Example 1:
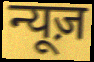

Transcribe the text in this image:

न्यूज़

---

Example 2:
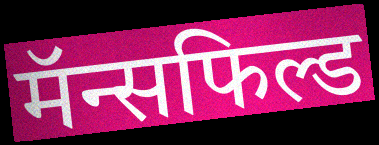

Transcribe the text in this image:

मॅन्सफिल्ड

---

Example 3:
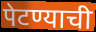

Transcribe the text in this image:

पेटण्याची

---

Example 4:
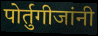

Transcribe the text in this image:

पोर्तुगीजांनी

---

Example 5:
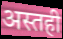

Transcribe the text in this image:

अस्तही